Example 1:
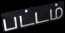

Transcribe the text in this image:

பட்டம்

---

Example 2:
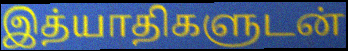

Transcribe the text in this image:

இத்யாதிகளுடன்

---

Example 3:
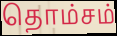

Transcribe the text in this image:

தொம்சம்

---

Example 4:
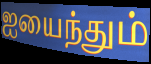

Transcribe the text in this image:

ஐயைந்தும்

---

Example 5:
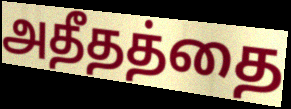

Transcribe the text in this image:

அதீதத்தை